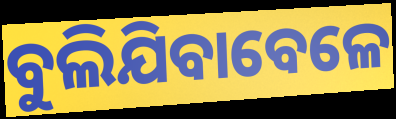
ବୁଲିଯିବାବେଳେ